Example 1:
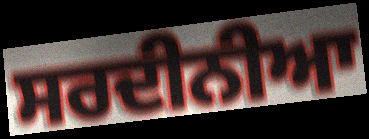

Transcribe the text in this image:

ਸਰਦੀਨੀਆ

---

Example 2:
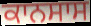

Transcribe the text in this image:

ਕਾਨਸਾਸ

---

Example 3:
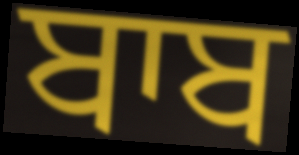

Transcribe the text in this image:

ਬਾਬ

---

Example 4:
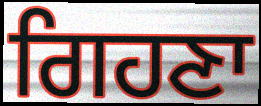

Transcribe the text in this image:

ਗਿਹਣਾ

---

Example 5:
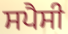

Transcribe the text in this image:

ਸਪੈਸੀ